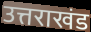
उत्तराखंड